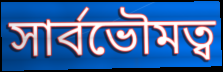
সার্বভৌমত্ব